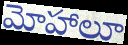
మోహాలూ